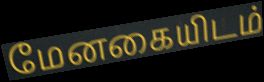
மேனகையிடம்